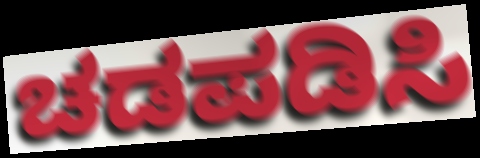
ಚಡಪಡಿಸಿ